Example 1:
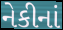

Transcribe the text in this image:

નેકીનાં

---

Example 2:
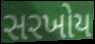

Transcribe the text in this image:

સરખોય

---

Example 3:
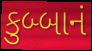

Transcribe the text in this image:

કુબ્બાનં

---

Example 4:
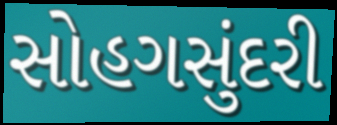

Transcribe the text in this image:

સોહગસુંદરી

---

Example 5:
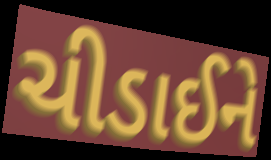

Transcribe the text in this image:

ચીડાઈને